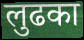
लुढका